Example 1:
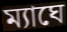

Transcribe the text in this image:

ম্যাঘে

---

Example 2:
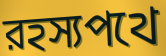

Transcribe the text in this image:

রহস্যপথে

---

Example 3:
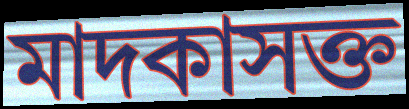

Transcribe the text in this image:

মাদকাসক্ত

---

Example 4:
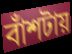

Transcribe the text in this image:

বাঁশটায়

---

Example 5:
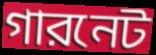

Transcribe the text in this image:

গারনেট